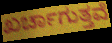
ಖರ್ಚಾಗುತ್ತವೆ